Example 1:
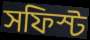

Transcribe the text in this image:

সফিস্ট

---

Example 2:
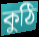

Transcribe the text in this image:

কুঠি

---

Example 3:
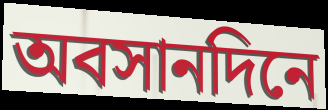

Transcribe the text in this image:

অবসানদিনে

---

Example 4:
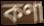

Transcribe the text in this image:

কণা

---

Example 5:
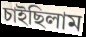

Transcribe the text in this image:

চাইছিলাম